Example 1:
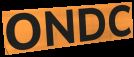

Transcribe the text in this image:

ONDC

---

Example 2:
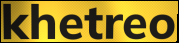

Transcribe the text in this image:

khetreo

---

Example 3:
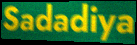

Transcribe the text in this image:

Sadadiya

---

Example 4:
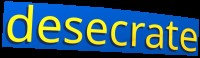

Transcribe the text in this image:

desecrate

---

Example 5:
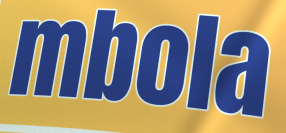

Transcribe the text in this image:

mbola